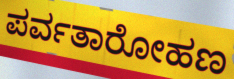
ಪರ್ವತಾರೋಹಣ